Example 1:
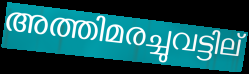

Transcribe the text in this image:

അത്തിമരച്ചുവട്ടില്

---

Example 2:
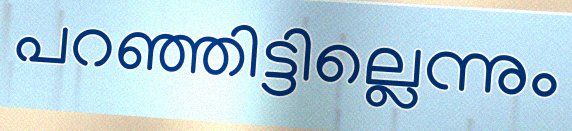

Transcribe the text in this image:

പറഞ്ഞിട്ടില്ലെന്നും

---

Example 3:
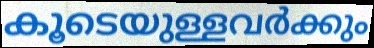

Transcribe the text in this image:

കൂടെയുള്ളവർക്കും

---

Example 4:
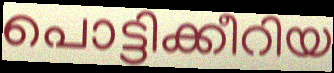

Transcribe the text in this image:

പൊട്ടിക്കീറിയ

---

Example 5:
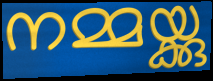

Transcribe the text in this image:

നമ്മയ്ക്കു